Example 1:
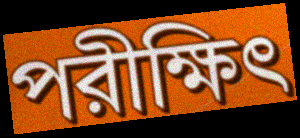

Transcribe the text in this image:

পরীক্ষিৎ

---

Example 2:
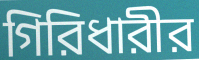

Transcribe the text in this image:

গিরিধারীর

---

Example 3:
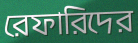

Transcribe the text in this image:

রেফারিদের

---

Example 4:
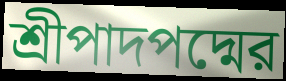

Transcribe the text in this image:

শ্রীপাদপদ্মের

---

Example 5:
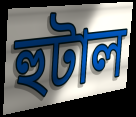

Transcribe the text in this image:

হুটাল